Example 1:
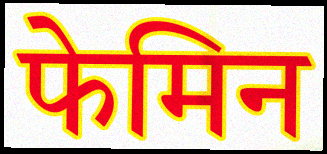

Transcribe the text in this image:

फेमिन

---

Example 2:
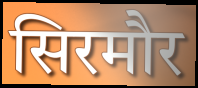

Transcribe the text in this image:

सिरमौर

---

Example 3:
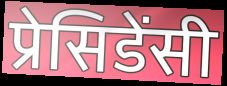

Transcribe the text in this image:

प्रेसिडेंसी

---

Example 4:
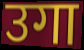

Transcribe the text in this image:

उगा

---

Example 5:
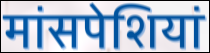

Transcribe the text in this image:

मांसपेशियां